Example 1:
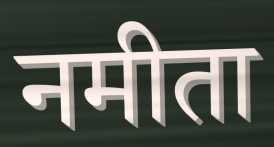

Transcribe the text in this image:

नमीता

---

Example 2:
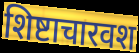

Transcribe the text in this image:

शिष्टाचारवश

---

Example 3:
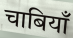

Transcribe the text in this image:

चाबियाँ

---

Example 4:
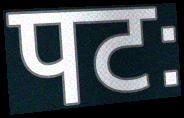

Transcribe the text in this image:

पटः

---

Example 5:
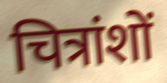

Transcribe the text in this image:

चित्रांशों